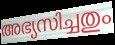
അഭ്യസിച്ചതും